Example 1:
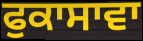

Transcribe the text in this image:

ਫੁਕਾਸਾਵਾ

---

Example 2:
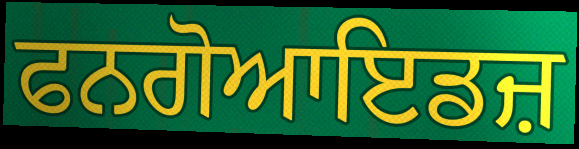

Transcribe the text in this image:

ਫਨਗੋਆਇਡਜ਼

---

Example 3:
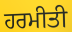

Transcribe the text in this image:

ਹਰਮੀਤੀ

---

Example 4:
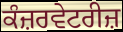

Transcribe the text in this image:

ਕੰਜ਼ਰਵੇਟਰੀਜ਼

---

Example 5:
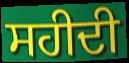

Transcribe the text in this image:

ਸਹੀਦੀ